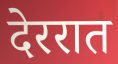
देररात